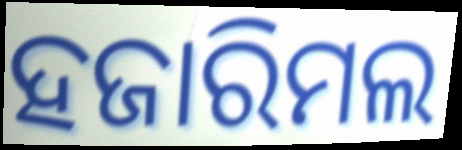
ହଜାରିମଲ